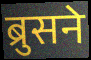
ब्रुसने